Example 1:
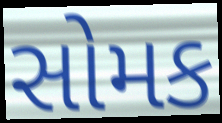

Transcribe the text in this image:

સોમક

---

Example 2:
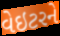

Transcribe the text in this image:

વેઇટરને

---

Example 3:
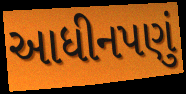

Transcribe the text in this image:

આધીનપણું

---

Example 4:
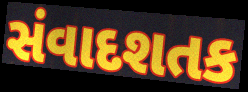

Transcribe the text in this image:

સંવાદશતક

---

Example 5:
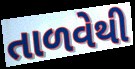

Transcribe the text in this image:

તાળવેથી